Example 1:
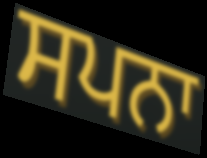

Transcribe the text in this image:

ਸਪਨਾ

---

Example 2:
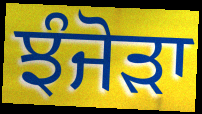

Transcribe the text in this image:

ਝੰਜੋੜਾ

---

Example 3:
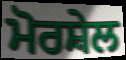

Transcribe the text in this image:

ਮੋਰਸ਼ੇਲ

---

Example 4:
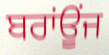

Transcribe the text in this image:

ਬਰਾਂਊਂਜ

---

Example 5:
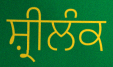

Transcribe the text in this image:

ਸ਼੍ਰੀਲੰਕ